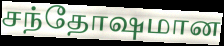
சந்தோஷமான